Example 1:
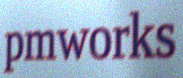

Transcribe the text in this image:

pmworks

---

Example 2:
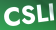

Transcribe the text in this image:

CSLI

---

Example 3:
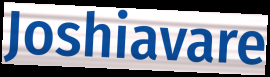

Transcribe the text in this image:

Joshiavare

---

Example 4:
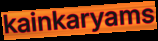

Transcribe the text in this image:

kainkaryams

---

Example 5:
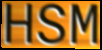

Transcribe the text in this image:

HSM